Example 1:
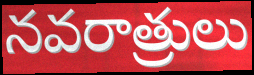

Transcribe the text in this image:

నవరాత్రులు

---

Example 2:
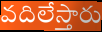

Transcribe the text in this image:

వదిలేస్తారు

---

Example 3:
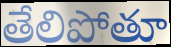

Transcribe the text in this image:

తేలిపోతూ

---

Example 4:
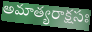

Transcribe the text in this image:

అమాత్యరాక్షసః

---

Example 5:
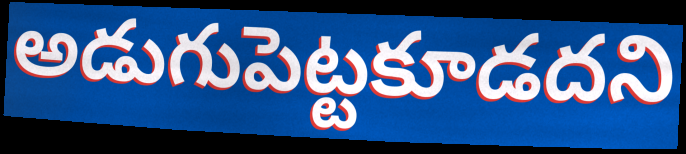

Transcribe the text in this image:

అడుగుపెట్టకూడదని